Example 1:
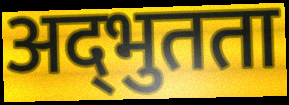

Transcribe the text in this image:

अद्‌भुतता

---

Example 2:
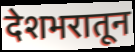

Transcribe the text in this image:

देशभरातून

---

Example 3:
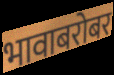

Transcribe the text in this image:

भावाबरोबर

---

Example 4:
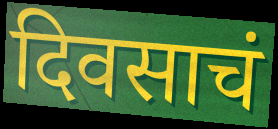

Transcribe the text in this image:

दिवसाचं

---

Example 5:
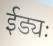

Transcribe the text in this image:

ईड्यः